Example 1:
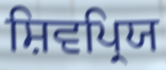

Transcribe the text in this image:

ਸ਼ਿਵਪ੍ਰਿਯ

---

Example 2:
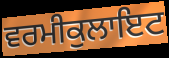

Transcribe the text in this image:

ਵਰਮੀਕੁਲਾਇਟ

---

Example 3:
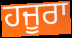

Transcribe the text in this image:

ਹਜੂਰਾ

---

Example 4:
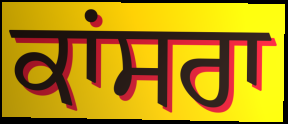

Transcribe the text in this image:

ਕਾਂਸਰਾ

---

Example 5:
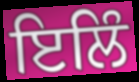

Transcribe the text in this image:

ਇਲਿੰ